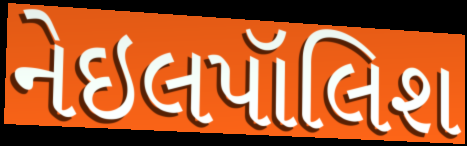
નેઇલપૉલિશ